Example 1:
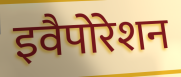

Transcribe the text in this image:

इवैपोरेशन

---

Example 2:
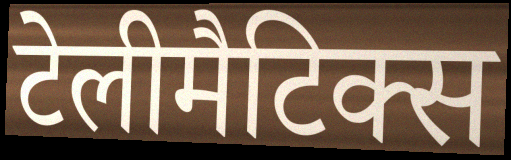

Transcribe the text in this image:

टेलीमैटिक्स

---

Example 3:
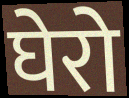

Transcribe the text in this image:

घेरो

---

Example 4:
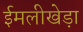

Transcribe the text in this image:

ईमलीखेड़ा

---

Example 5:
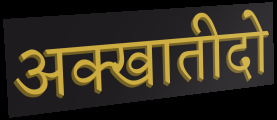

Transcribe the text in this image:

अक्खातीदो